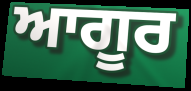
ਆਗੂਰ